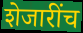
शेजारींच